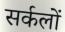
सर्कलों